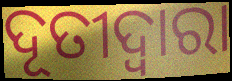
ଦୂତୀଦ୍ୱାରା